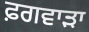
ਫ਼ਗਵਾੜਾ